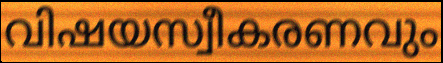
വിഷയസ്വീകരണവും